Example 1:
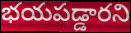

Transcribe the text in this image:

భయపడ్డారని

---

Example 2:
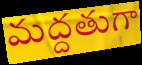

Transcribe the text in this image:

మద్దతుగా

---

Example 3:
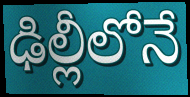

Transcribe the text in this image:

ఢిల్లీలోనే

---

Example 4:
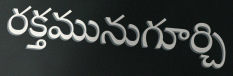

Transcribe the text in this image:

రక్తమునుగూర్చి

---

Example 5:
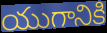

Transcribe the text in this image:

యుగానికి